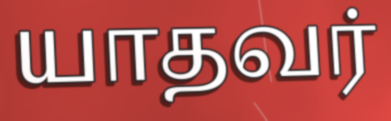
யாதவர்